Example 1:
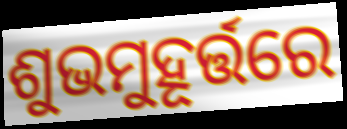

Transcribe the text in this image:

ଶୁଭମୁହୂର୍ତ୍ତରେ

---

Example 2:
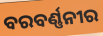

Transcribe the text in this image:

ବରବର୍ଣ୍ଣନୀର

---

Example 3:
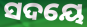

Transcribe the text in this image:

ସଦୟେ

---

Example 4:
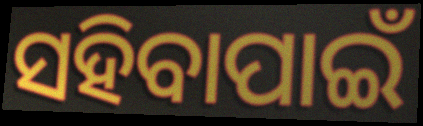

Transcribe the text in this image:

ସହିବାପାଇଁ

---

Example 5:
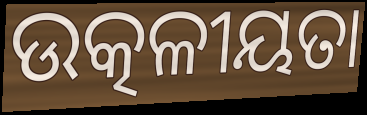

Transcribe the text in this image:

ଉତ୍କଳୀୟତା